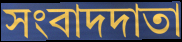
সংবাদদাতা